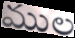
ముల